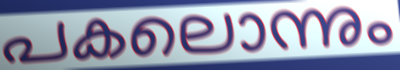
പകലൊന്നും